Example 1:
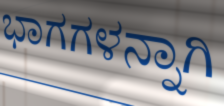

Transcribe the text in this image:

ಭಾಗಗಳನ್ನಾಗಿ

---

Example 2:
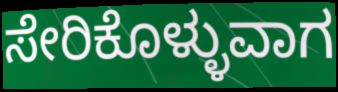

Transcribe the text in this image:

ಸೇರಿಕೊಳ್ಳುವಾಗ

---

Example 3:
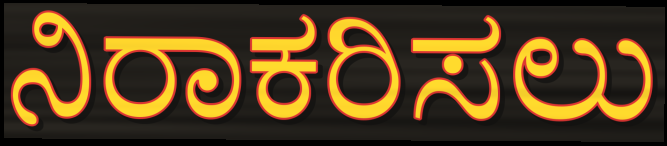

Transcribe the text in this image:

ನಿರಾಕರಿಸಲು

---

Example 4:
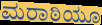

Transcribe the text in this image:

ಮರಾಠಿಯೂ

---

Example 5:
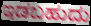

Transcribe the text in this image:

ಇಡಬಹುದು